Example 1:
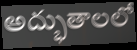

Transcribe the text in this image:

అద్భుతాలలో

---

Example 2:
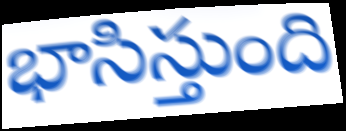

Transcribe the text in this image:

భాసిస్తుంది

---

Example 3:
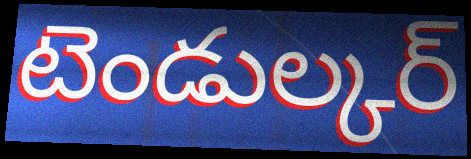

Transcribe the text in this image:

టెండుల్కర్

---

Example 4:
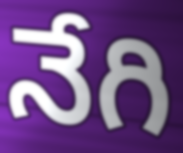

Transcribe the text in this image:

నేగి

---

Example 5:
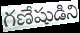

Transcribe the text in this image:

గణేషుడిని